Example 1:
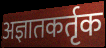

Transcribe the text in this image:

अज्ञातकर्तृक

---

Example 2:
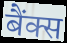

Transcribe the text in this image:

बैंक्स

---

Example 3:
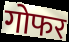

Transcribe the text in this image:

गोफर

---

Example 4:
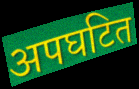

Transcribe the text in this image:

अपघटित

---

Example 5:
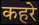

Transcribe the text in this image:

कहरे